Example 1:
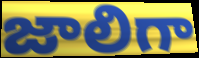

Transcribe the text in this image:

జాలిగా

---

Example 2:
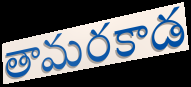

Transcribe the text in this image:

తామరకాడ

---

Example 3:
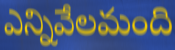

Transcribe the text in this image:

ఎన్నివేలమంది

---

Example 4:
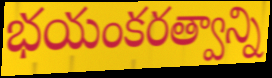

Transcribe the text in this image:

భయంకరత్వాన్ని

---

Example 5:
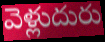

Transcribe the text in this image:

వెళ్లుదురు